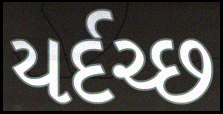
યર્દચ્છ